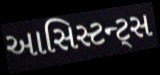
આસિસ્ટન્ટ્સ